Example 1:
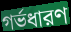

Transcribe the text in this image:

গর্ভধারণ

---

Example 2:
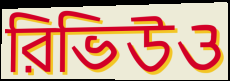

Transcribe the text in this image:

রিভিউও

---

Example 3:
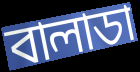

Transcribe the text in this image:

বালাডা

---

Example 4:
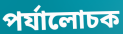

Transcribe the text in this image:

পর্যালোচক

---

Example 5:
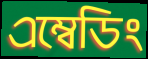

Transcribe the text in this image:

এম্বেডিং